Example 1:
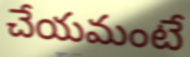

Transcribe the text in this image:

చేయమంటే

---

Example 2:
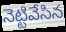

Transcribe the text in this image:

నెట్టివేసిన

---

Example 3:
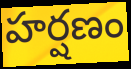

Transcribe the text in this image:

హర్షణం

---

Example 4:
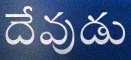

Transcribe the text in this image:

దేవుడు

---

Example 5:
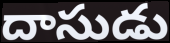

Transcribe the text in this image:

దాసుడు